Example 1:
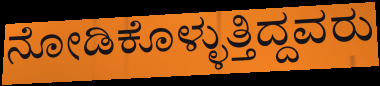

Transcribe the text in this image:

ನೋಡಿಕೊಳ್ಳುತ್ತಿದ್ದವರು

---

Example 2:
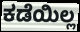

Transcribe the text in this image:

ಕಡೆಯಿಲ್ಲ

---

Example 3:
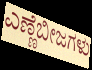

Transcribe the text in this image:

ಎಣ್ಣೆಬೀಜಗಳು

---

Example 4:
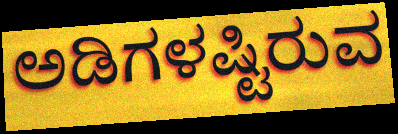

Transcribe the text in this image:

ಅಡಿಗಳಷ್ಟಿರುವ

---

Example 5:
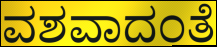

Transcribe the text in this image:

ವಶವಾದಂತೆ